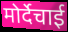
मोर्देचाई